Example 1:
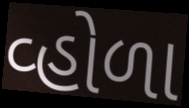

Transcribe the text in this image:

વ્હોળા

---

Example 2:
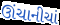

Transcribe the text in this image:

ઊંચાનીચાં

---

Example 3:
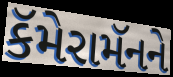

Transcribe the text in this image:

કૅમેરામૅનને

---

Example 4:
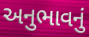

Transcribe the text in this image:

અનુભાવનું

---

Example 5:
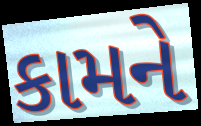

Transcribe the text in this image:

કામને